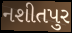
નશીતપુર